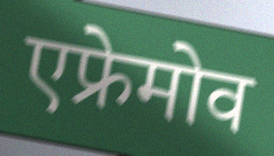
एफ्रेमोव